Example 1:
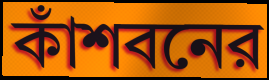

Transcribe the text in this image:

কাঁশবনের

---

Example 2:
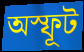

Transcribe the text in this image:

অস্ফূট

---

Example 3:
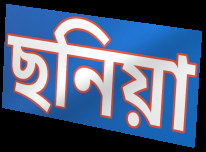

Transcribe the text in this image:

ছনিয়া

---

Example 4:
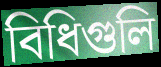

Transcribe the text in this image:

বিধিগুলি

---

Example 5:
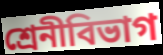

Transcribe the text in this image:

শ্রেনীবিভাগ